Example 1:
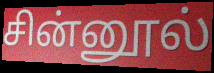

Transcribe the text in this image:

சின்னூல்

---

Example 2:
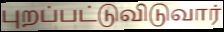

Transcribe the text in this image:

புறப்பட்டுவிடுவார்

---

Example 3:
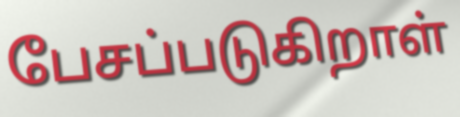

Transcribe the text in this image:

பேசப்படுகிறாள்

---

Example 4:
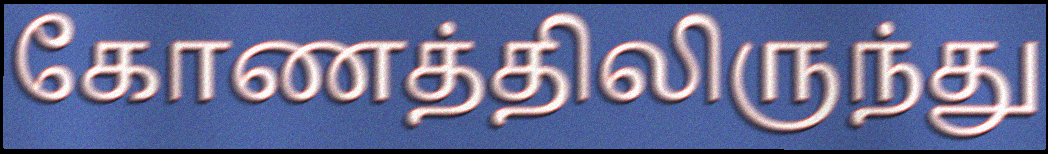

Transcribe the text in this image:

கோணத்திலிருந்து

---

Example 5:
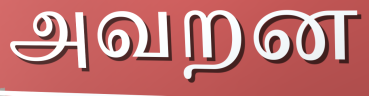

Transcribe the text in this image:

அவறன